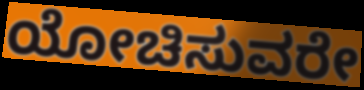
ಯೋಚಿಸುವರೇ